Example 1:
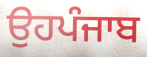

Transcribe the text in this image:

ਉਹਪੰਜਾਬ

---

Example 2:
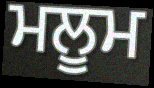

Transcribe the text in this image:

ਮਲੂਮ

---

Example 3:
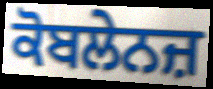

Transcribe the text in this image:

ਕੋਬਲੇਨਜ਼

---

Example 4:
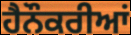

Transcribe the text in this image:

ਹੈਨੌਕਰੀਆਂ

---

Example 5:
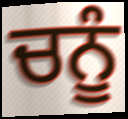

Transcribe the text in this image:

ਚਨੂੰ